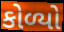
કોળ્યો